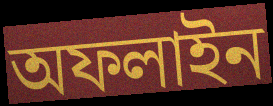
অফলাইন